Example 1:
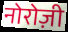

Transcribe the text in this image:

नोरोज़ी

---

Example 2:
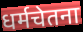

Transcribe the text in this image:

धर्मचेतना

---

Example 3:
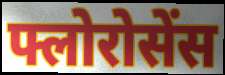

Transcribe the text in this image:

फ्लोरोसेंस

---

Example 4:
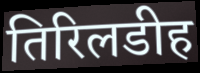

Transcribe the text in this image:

तिरिलडीह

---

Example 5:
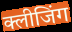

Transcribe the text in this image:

क्‍लीजिंग